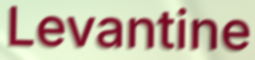
Levantine